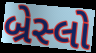
બ્રેસ્લો